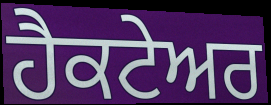
ਹੈਕਟੇਅਰ